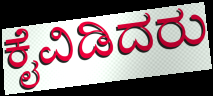
ಕೈವಿಡಿದರು